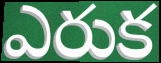
ఎరుక